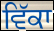
ਵਿੱਕਾ